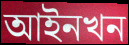
আইনখন